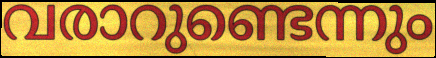
വരാറുണ്ടെന്നും